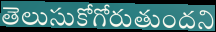
తెలుసుకోగోరుతుందని